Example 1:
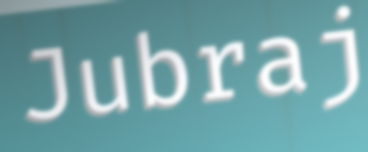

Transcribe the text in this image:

Jubraj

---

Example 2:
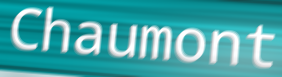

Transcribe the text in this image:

Chaumont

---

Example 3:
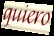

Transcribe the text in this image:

quiero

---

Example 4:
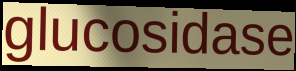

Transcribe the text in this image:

glucosidase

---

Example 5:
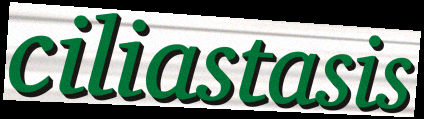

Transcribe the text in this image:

ciliastasis